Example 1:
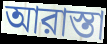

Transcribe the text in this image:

আরাস্তা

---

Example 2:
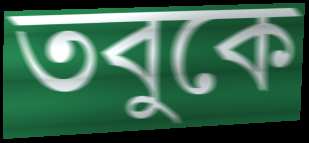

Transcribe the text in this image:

তবুকে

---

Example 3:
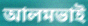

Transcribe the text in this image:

আলমভাই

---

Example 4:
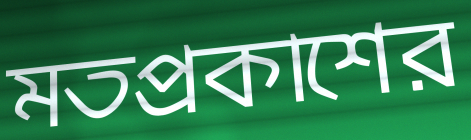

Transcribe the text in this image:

মতপ্রকাশের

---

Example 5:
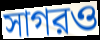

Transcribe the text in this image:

সাগরও